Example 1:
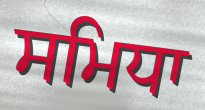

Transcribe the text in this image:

ਸਮਿਧਾ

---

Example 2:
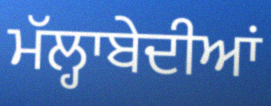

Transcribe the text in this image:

ਮੱਲ੍ਹਾਬੇਦੀਆਂ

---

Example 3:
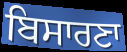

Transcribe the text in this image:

ਬਿਸਾਰਣਾ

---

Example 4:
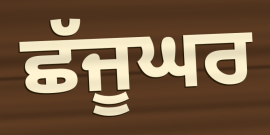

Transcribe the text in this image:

ਛੱਜੂਘਰ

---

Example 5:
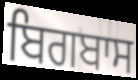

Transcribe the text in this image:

ਬਿਗਬਾਸ